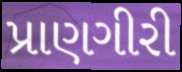
પ્રાણગીરી